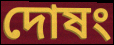
দোষং